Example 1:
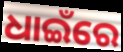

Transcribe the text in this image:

ଧାଇଁରେ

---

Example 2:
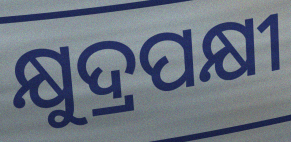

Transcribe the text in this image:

କ୍ଷୁଦ୍ରପକ୍ଷୀ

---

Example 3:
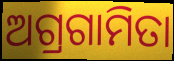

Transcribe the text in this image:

ଅଗ୍ରଗାମିତା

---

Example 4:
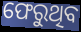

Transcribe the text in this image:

ଫେରୁଥିବ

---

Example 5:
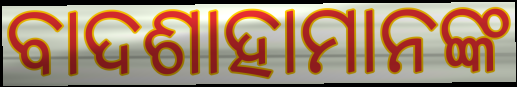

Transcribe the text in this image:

ବାଦଶାହାମାନଙ୍କ